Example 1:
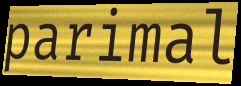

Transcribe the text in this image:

parimal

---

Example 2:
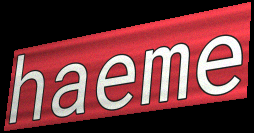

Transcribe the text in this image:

haeme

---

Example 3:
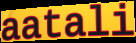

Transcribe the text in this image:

aatali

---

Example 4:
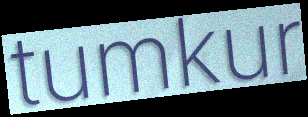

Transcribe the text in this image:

tumkur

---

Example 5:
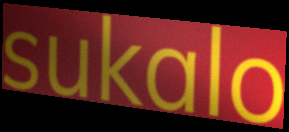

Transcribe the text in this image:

sukalo